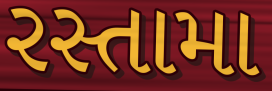
રસ્તામા